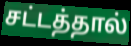
சட்டத்தால்